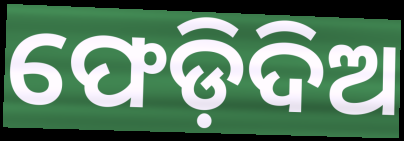
ଫେଡ଼ିଦିଅ